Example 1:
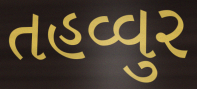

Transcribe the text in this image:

તહવ્વુર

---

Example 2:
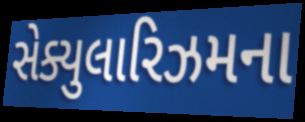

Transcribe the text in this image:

સેક્યુલારિઝમના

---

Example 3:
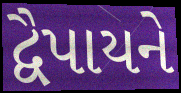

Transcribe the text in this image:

દ્વૈપાયને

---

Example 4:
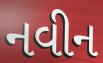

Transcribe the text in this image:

નવીન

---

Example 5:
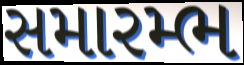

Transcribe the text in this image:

સમારમ્ભ